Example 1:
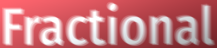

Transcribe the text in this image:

Fractional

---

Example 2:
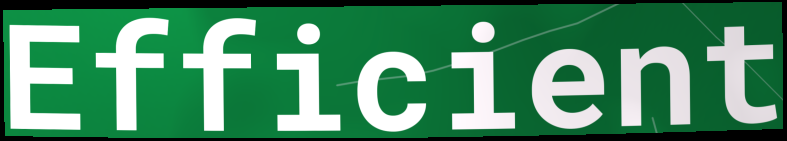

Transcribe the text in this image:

Efficient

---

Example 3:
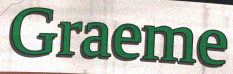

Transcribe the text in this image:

Graeme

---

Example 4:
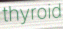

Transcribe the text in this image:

thyroid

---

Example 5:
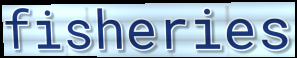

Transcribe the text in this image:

fisheries